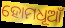
ହୋମଧୂଆଁ